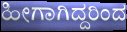
ಹೀಗಾಗಿದ್ದರಿಂದ